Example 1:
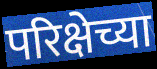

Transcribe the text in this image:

परिक्षेच्या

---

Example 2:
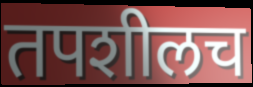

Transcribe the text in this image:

तपशीलच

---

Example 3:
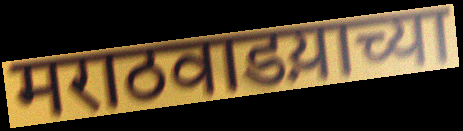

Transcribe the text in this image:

मराठवाडय़ाच्या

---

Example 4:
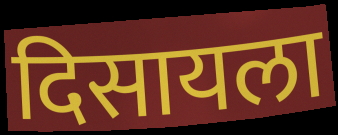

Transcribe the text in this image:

दिसायला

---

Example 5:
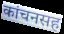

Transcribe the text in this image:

कांचनसह